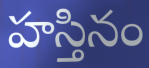
హస్తినం